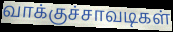
வாக்குச்சாவடிகள்